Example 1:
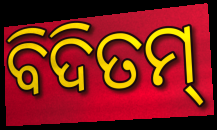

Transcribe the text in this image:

ବିଦିତମ୍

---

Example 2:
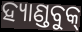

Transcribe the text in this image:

ହ୍ୟାଣ୍ଡବୁକ୍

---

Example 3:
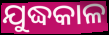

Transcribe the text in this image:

ଯୁଦ୍ଧକାଳ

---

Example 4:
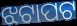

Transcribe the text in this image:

ଝଟାପଟ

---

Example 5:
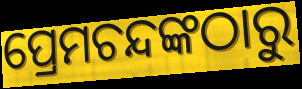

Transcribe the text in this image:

ପ୍ରେମଚନ୍ଦଙ୍କଠାରୁ